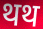
थथ